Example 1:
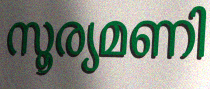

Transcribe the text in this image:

സൂര്യമണി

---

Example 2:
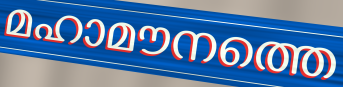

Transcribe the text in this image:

മഹാമൗനത്തെ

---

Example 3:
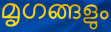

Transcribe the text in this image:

മൃഗങ്ങളും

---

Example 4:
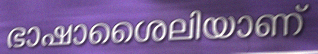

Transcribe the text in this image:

ഭാഷാശൈലിയാണ്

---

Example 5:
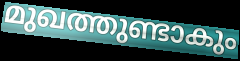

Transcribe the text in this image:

മുഖത്തുണ്ടാകും